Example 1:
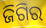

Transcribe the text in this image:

ଜିଗିର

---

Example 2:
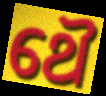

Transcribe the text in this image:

ଥୈ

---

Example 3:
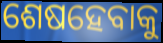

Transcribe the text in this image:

ଶେଷହେବାକୁ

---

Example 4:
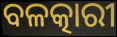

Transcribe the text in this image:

ବଳତ୍କାରୀ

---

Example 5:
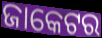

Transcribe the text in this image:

ଜାକେଟର